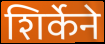
शिर्केने